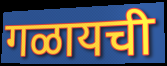
गळायची